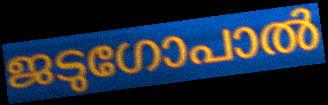
ജടുഗോപാൽ